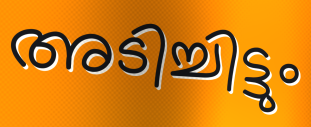
അടിച്ചിട്ടും